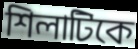
শিলাটিকে